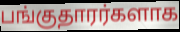
பங்குதாரர்களாக